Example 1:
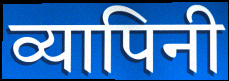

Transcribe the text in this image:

व्यापिनी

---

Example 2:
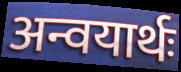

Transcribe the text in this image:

अन्वयार्थः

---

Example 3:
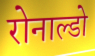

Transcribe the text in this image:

रोनाल्डो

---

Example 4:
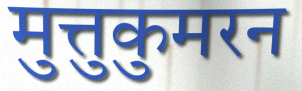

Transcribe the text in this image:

मुत्तुकुमरन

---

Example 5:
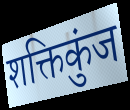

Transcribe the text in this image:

शक्तिकुंज